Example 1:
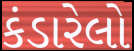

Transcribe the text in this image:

કંડારેલો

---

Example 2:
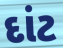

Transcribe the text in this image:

દાંટ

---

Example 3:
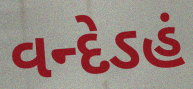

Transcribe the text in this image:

વન્દેઽહં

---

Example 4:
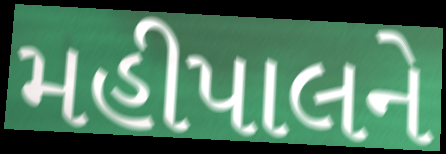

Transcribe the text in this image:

મહીપાલને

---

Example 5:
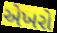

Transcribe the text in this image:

એખરો